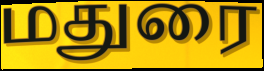
மதுரை